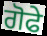
ਗੋਫੇ